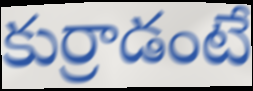
కుర్రాడంటే